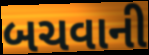
બચવાની